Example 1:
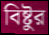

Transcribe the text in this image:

বিষ্টুর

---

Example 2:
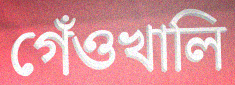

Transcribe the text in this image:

গেঁওখালি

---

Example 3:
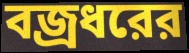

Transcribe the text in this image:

বজ্রধরের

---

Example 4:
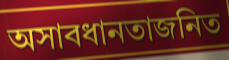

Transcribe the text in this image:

অসাবধানতাজনিত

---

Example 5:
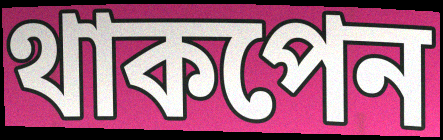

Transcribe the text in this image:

থাকপেন